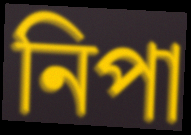
নিপা